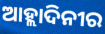
ଆହ୍ଲାଦିନୀର